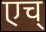
एच्